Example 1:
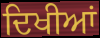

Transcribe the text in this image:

ਦਿਖੀਆਂ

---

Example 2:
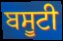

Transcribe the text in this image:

ਬਸੂਟੀ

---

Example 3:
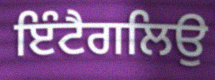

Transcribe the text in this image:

ਇੰਟੈਗਲਿਉ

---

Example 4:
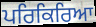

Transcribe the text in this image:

ਪਰਿਕਿਰਿਆ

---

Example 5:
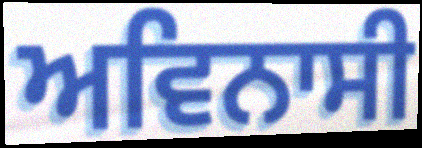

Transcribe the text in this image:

ਅਵਿਨਾਸੀ